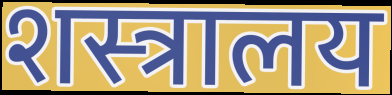
शस्त्रालय